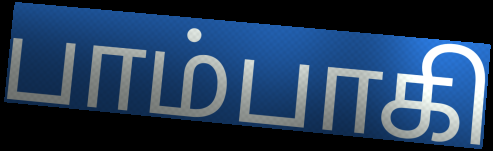
பாம்பாகி